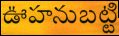
ఊహనుబట్టి